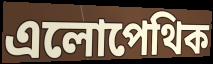
এলোপেথিক